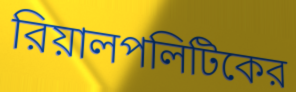
রিয়ালপলিটিকের